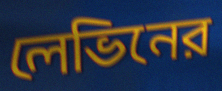
লেভিনের